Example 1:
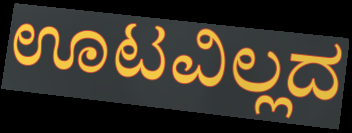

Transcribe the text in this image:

ಊಟವಿಲ್ಲದ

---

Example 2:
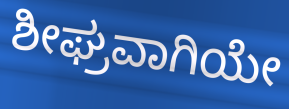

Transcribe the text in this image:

ಶೀಘ್ರವಾಗಿಯೇ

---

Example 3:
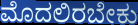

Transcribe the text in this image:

ಮೊದಲಿರಬೇಕು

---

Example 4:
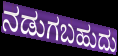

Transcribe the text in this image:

ನಡುಗಬಹುದು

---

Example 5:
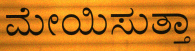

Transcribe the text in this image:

ಮೇಯಿಸುತ್ತಾ